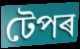
টেপৰ